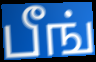
பீங்